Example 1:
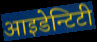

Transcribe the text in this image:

आइडेन्टिटी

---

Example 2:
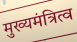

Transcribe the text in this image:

मुख्यमंत्रित्व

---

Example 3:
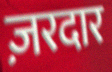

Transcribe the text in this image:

ज़रदार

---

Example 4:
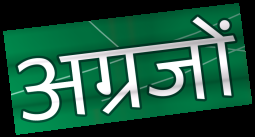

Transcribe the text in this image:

अग्रजों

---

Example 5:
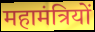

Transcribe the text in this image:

महामंत्रियों